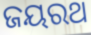
ଜୟରଥ